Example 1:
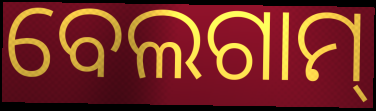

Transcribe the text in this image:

ବେଲଗାମ୍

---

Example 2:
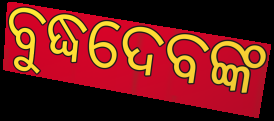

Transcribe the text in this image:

ବୁଦ୍ଧଦେବଙ୍କ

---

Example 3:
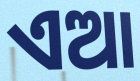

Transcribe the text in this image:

ଏଆ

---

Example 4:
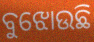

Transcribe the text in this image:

ବୁଝୋଉଛି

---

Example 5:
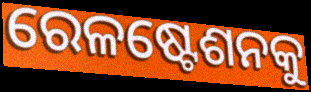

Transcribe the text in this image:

ରେଳଷ୍ଟେଶନକୁ